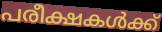
പരീക്ഷകൾക്ക്